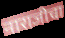
नाराजीचा